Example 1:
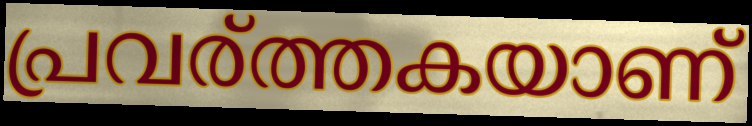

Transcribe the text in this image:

പ്രവര്ത്തകയാണ്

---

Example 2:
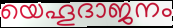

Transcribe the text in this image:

യെഹൂദാജനം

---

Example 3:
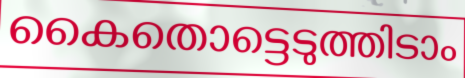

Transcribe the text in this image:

കൈതൊട്ടെടുത്തിടാം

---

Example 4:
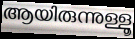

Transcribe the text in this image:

ആയിരുന്നുള്ളൂ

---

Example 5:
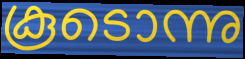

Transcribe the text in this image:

കൂടൊന്നു